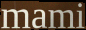
mami